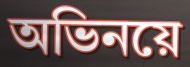
অভিনয়ে